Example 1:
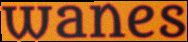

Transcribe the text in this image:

wanes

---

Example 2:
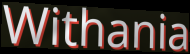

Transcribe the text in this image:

Withania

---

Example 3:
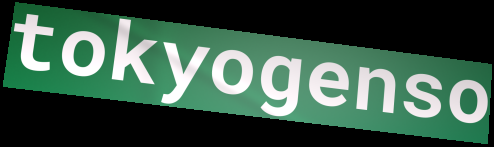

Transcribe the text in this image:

tokyogenso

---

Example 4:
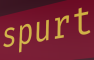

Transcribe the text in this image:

spurt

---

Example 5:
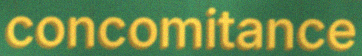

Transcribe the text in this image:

concomitance